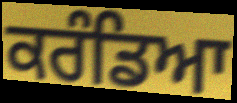
ਕਰੰਡਿਆ